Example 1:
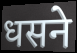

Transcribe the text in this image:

धसने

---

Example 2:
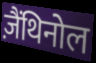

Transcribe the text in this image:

ज़ैंथिनोल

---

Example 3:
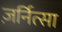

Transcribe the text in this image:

ज़र्नित्सा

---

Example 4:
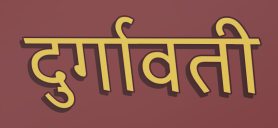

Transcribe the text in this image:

दुर्गावती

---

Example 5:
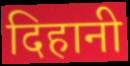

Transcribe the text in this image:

दिहानी